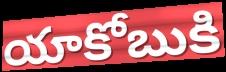
యాకోబుకి